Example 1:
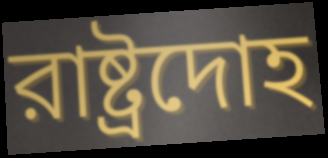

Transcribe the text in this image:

রাষ্ট্রদোহ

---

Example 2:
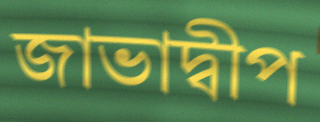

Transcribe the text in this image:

জাভাদ্বীপ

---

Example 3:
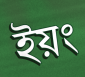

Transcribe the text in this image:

ইয়ং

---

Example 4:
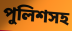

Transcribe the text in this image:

পুলিশসহ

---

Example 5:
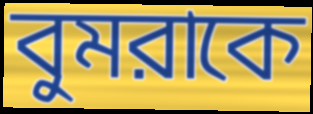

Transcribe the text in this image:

বুমরাকে